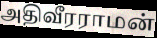
அதிவீரராமன்